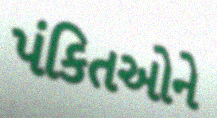
પંકિતઓને